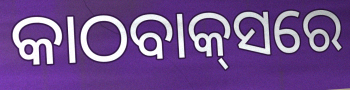
କାଠବାକ୍‍ସରେ